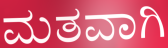
ಮತವಾಗಿ